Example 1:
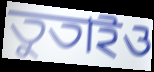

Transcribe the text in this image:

তুতাইও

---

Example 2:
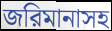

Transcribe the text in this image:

জরিমানাসহ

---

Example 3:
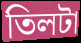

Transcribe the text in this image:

তিলটা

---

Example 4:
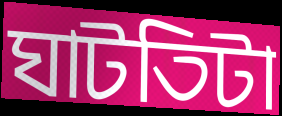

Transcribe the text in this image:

ঘাটতিটা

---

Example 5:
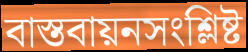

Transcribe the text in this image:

বাস্তবায়নসংশ্লিষ্ট